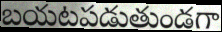
బయటపడుతుండగా